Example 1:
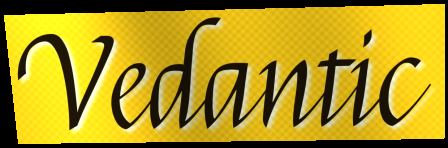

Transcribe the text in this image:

Vedantic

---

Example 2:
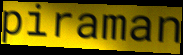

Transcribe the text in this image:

piraman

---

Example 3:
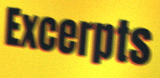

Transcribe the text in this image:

Excerpts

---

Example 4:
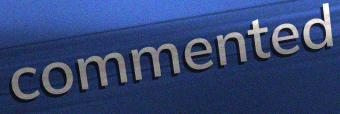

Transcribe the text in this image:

commented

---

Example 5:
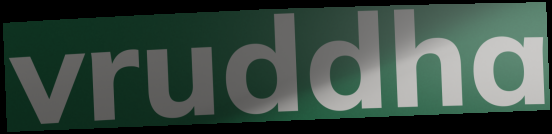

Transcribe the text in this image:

vruddha